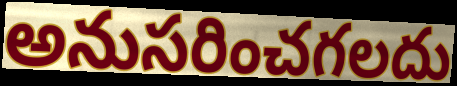
అనుసరించగలదు